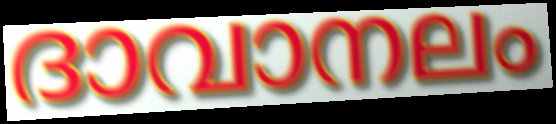
ദാവാനലം